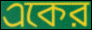
একের